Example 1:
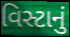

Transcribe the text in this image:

વિસ્ટાનું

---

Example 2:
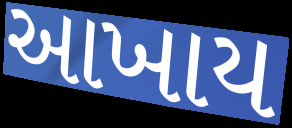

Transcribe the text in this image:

આખાય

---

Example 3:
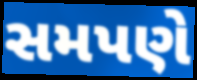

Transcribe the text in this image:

સમપણે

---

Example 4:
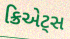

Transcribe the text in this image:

ક્રિએટ્સ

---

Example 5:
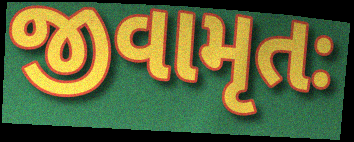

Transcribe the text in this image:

જીવામૃતઃ